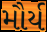
મૌર્ય